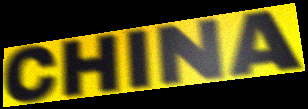
CHINA